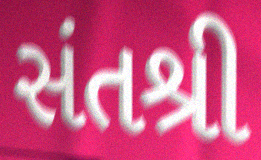
સંતશ્રી